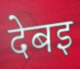
देबइ